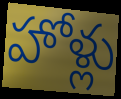
హోళ్లు